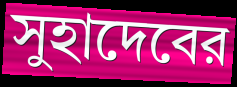
সুহাদেবের